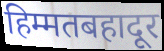
हिम्मतबहादूर